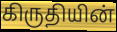
கிருதியின்